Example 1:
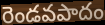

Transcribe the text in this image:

రెండవపాదం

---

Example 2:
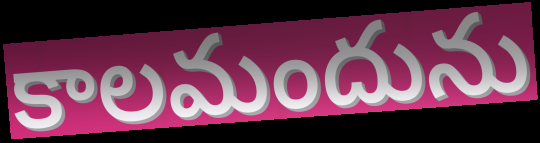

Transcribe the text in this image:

కాలమందును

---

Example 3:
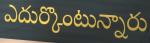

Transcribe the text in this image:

ఎదుర్కొంటున్నారు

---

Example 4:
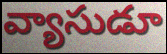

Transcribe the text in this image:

వ్యాసుడూ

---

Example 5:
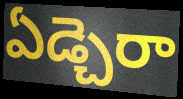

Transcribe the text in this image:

ఏడ్చెరా